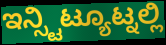
ಇನ್ಸ್ಟಿಟ್ಯೂಟ್ನಲ್ಲಿ